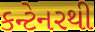
કન્ટેનરથી